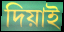
দিয়াই